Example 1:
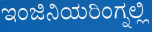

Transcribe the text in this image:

ಇಂಜಿನಿಯರಿಂಗ್ನಲ್ಲಿ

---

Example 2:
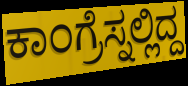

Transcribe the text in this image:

ಕಾಂಗ್ರೆಸ್ನಲ್ಲಿದ್ದ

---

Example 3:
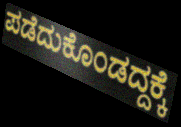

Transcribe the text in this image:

ಪಡೆದುಕೊಂಡದ್ದಕ್ಕೆ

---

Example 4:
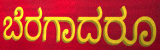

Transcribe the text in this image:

ಬೆರಗಾದರೂ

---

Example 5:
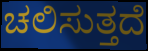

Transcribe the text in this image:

ಚಲಿಸುತ್ತದೆ